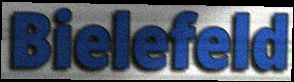
Bielefeld